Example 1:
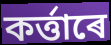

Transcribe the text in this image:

কৰ্ত্তাৰে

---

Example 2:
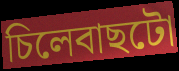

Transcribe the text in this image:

চিলেবাছটো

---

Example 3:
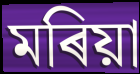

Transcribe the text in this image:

মৰিয়া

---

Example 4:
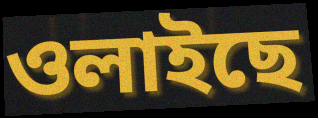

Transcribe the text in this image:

ওলাইছে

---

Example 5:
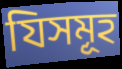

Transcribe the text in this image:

যিসমূহ